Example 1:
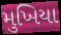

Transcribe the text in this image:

મુખિયા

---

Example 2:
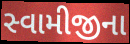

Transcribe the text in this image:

સ્વામીજીના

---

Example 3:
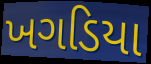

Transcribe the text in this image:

ખગડિયા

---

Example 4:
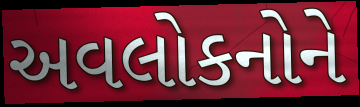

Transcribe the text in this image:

અવલોકનોને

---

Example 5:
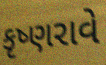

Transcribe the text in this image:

કૃષ્ણરાવે